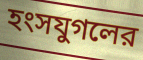
হংসযুগলের